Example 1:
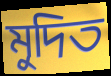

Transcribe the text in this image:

মুদিত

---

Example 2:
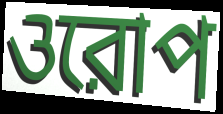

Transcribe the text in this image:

ওরোপ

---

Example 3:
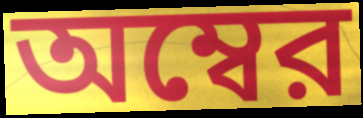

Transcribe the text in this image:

অম্বের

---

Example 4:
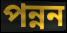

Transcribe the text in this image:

পন্নন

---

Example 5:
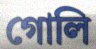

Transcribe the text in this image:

গোলি